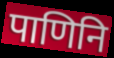
पाणिनि